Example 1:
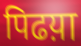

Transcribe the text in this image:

पिढय़ा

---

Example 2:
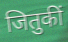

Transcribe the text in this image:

जितुकीं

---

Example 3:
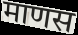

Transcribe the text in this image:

माणस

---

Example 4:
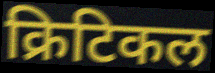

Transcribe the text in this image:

क्रिटिकल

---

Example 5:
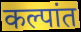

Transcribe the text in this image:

कल्पांत